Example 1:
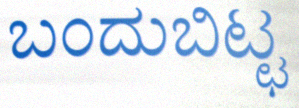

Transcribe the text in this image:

ಬಂದುಬಿಟ್ಟ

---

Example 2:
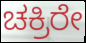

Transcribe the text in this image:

ಚಕ್ರಿರೇ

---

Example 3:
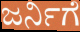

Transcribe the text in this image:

ಜರ್ನಿಗೆ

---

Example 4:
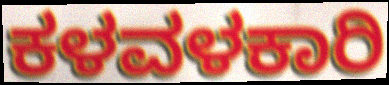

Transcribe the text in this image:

ಕಳವಳಕಾರಿ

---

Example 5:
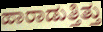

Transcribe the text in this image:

ಹಾರಾಡುತ್ತಿತ್ತು